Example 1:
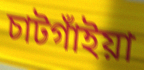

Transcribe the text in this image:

চাটগাঁইয়া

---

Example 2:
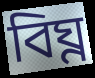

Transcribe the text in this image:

বিঘ্ন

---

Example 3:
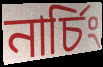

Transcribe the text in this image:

নাৰ্চিং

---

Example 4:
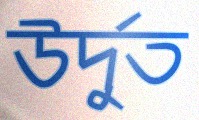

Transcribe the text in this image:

উৰ্দুত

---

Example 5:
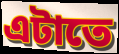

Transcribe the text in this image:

এটাতে